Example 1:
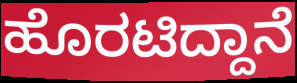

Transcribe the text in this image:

ಹೊರಟಿದ್ದಾನೆ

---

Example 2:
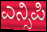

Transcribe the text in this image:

ಎನ್ಸಿಪಿ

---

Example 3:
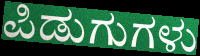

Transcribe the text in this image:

ಪಿಡುಗುಗಳು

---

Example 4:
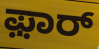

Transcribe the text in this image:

ಫ಼ಾರ್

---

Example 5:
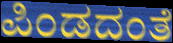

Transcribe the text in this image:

ಪಿಂಡದಂತೆ